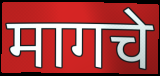
मागचे